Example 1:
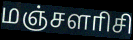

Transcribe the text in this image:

மஞ்சளரிசி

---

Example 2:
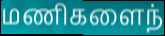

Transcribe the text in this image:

மணிகளைந்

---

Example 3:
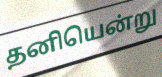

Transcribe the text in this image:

தனியென்று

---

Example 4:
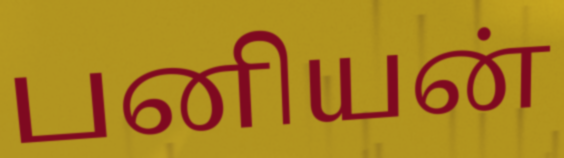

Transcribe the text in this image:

பனியன்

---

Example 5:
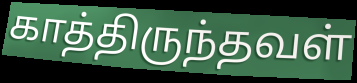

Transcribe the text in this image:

காத்திருந்தவள்